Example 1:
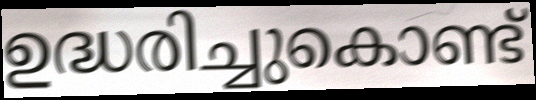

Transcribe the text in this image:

ഉദ്ധരിച്ചുകൊണ്ട്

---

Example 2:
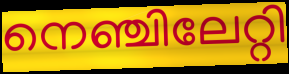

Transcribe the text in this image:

നെഞ്ചിലേറ്റി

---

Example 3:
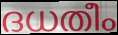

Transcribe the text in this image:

ദധതീം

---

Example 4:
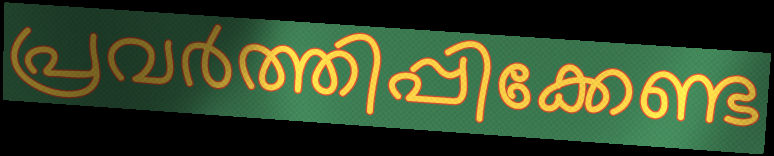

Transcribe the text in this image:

പ്രവർത്തിപ്പിക്കേണ്ട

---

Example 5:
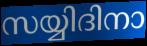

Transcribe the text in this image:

സയ്യിദിനാ